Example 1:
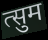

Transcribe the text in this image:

त्सुम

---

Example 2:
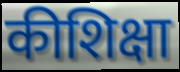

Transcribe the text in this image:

कीशिक्षा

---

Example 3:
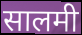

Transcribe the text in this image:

सालमी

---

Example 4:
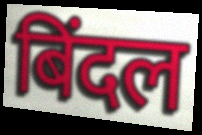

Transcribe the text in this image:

बिंदल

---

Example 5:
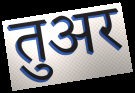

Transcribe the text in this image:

तुअर